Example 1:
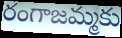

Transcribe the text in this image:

రంగాజమ్మకు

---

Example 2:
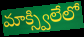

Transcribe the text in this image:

మాక్స్విలేలో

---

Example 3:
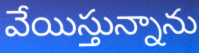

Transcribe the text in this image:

వేయిస్తున్నాను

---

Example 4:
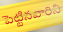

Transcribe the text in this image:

పెట్టినవారిని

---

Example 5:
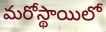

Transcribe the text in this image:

మరోస్థాయిలో